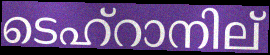
ടെഹ്റാനില്